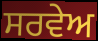
ਸਰਵੇਅ